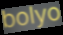
bolyo